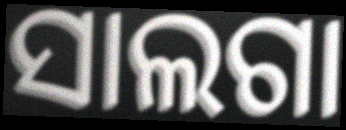
ସାଲଗା